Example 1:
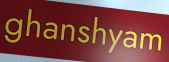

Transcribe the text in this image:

ghanshyam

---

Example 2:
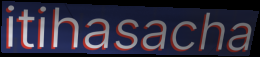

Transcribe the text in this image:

itihasacha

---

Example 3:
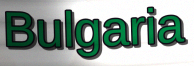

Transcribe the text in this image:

Bulgaria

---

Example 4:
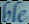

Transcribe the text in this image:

ble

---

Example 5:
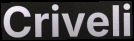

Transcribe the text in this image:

Criveli